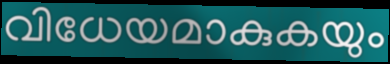
വിധേയമാകുകയും